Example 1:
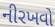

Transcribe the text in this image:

નીરખવો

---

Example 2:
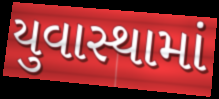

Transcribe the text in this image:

યુવાસ્થામાં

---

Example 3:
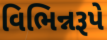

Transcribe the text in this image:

વિભિન્નરૂપે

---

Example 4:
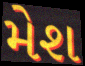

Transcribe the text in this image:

મેશ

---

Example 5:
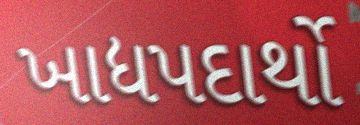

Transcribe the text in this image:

ખાદ્યપદાર્થો